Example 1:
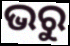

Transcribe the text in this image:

ଭରୁ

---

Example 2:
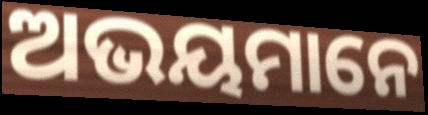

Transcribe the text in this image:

ଅଭୟମାନେ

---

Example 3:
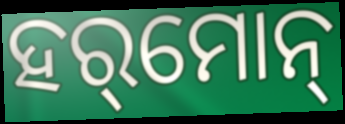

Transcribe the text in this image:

ହର୍‌ମୋନ୍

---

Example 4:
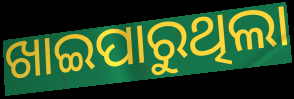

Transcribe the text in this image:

ଖାଇପାରୁଥିଲା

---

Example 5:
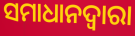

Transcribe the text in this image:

ସମାଧାନଦ୍ୱାରା